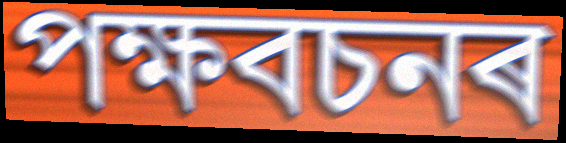
পক্ষবচনৰ